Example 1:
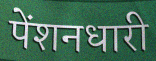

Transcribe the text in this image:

पेंशनधारी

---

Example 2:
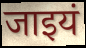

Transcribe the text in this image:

जाइयं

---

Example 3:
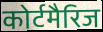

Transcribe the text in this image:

कोर्टमैरिज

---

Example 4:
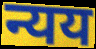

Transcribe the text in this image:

न्यय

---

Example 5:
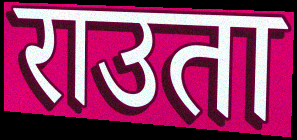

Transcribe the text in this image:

राउता